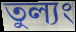
তুল্যং